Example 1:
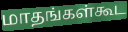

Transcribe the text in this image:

மாதங்கள்கூட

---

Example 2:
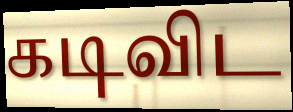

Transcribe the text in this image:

கடிவிட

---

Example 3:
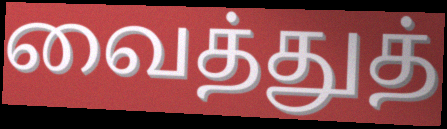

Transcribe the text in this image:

வைத்துத்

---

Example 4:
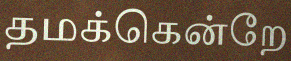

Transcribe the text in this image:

தமக்கென்றே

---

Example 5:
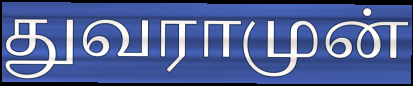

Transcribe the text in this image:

துவராமுன்